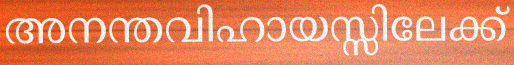
അനന്തവിഹായസ്സിലേക്ക്